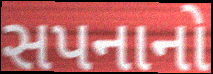
સપનાનો